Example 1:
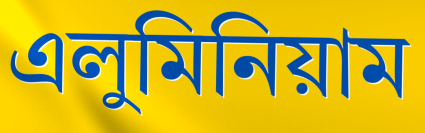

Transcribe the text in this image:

এলুমিনিয়াম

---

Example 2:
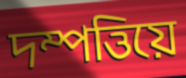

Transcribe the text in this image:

দম্পত্তিয়ে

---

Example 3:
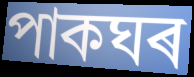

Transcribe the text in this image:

পাকঘৰ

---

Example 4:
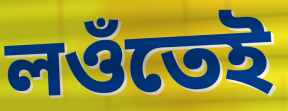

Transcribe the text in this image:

লওঁতেই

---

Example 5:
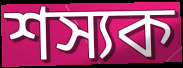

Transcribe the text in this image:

শস্যক